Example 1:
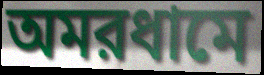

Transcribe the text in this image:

অমরধামে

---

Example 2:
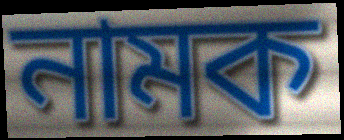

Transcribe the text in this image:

নামক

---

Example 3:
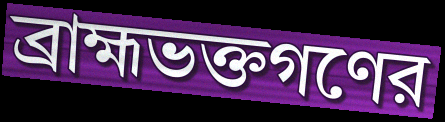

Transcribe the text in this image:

ব্রাহ্মভক্তগণের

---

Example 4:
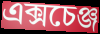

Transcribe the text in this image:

এক্সচেঞ্জ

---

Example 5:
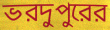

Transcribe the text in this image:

ভরদুপুরের